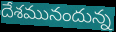
దేశమునందున్న